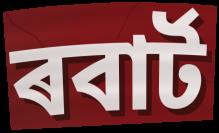
ৰবাৰ্ট